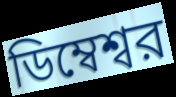
ডিম্বেশ্বর